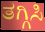
ತಗ್ಗಿಸಿ